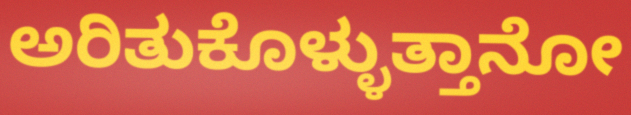
ಅರಿತುಕೊಳ್ಳುತ್ತಾನೋ